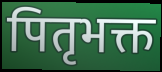
पितृभक्त